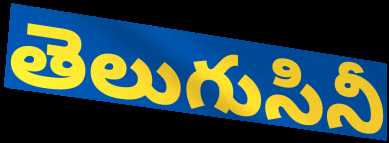
తెలుగుసినీ